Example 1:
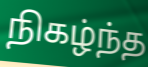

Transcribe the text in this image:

நிகழ்ந்த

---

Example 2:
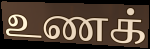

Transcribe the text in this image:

உணக்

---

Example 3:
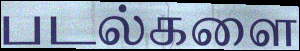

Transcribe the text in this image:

படல்களை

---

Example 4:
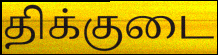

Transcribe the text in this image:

திக்குடை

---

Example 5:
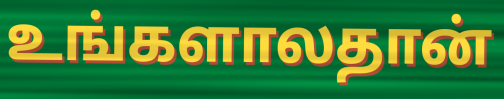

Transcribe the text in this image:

உங்களாலதான்